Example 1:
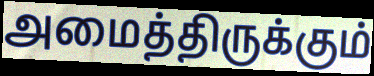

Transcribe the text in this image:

அமைத்திருக்கும்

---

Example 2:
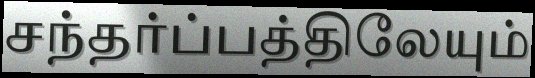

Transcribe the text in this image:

சந்தர்ப்பத்திலேயும்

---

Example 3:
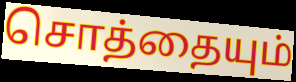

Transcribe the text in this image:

சொத்தையும்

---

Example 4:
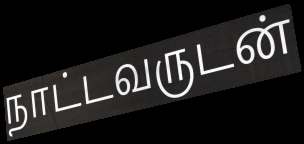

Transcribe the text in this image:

நாட்டவருடன்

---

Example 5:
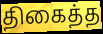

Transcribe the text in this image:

திகைத்த